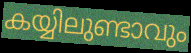
കയ്യിലുണ്ടാവും